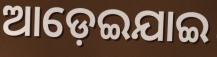
ଆଡ଼େଇଯାଇ